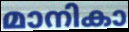
മാനികാ